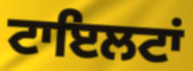
ਟਾਇਲਟਾਂ